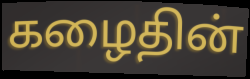
கழைதின்